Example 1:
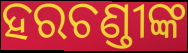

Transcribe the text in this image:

ହରଚଣ୍ଡୀଙ୍କ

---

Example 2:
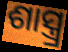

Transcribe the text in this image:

ଶାସ୍ତ୍ର୍ର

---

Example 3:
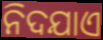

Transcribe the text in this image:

ନିଦଯାଏ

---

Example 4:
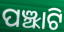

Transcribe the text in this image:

ପଞ୍ଝାଟି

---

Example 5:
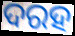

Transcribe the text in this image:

ଦରହ